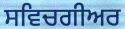
ਸਵਿਚਗੀਅਰ